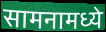
सामनामध्ये